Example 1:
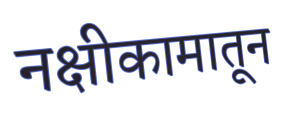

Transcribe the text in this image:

नक्षीकामातून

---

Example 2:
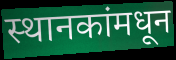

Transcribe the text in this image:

स्थानकांमधून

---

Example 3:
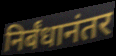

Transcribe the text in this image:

निर्बंधानंतर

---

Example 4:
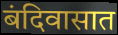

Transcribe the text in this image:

बंदिवासात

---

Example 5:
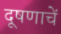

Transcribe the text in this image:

दूषणाचें